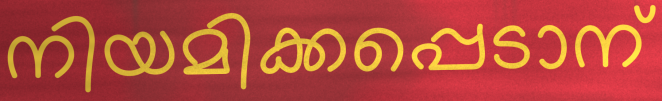
നിയമിക്കപ്പെടാന്